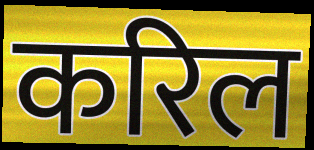
करिल